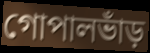
গোপালভাঁড়